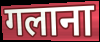
गलाना